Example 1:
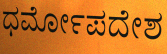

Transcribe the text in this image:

ಧರ್ಮೋಪದೇಶ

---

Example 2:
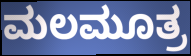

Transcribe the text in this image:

ಮಲಮೂತ್ರ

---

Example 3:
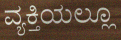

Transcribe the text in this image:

ವ್ಯಕ್ತಿಯಲ್ಲೂ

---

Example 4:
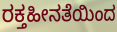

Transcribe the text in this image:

ರಕ್ತಹೀನತೆಯಿಂದ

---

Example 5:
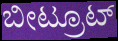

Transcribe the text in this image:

ಬೀಟ್ರೂಟ್